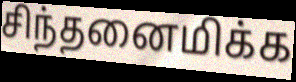
சிந்தனைமிக்க